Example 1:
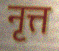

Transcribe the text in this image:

नृत्त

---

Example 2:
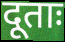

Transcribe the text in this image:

दूताः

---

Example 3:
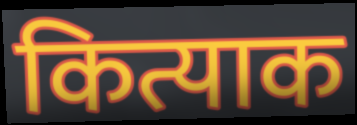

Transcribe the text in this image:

कित्याक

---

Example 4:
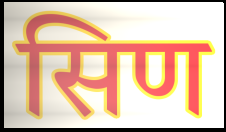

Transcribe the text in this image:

सिण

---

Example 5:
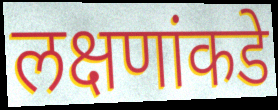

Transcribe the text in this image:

लक्षणांकडे